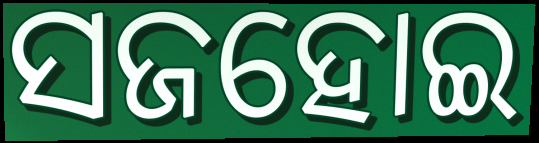
ସଜହୋଇ